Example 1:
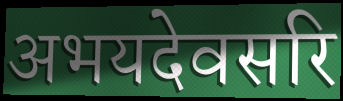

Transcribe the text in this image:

अभयदेवसरि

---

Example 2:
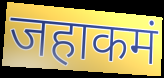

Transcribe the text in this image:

जहाकमं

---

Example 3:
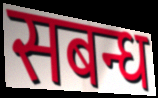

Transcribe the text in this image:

सबन्ध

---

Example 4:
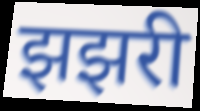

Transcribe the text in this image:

झझरी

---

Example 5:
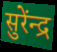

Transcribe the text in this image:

सुरेंन्द्र